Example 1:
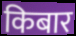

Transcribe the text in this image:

किबार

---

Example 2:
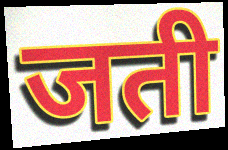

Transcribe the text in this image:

जती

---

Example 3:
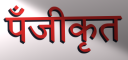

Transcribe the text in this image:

पँजीकृत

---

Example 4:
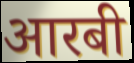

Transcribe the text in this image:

आरबी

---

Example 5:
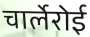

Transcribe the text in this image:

चार्लेरोई